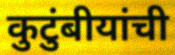
कुटुंबीयांची